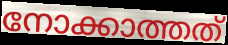
നോക്കാത്തത്